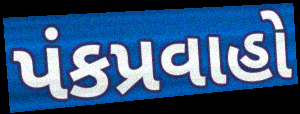
પંકપ્રવાહો